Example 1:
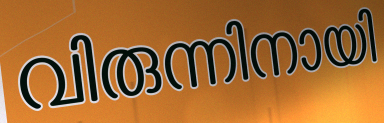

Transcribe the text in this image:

വിരുന്നിനായി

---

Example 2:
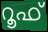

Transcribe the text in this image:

റൂഫ്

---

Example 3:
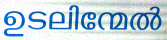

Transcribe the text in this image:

ഉടലിന്മേൽ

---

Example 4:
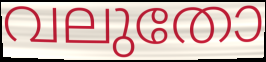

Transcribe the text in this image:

വലുതോ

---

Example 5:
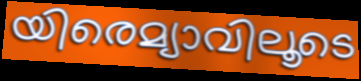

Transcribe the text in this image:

യിരെമ്യാവിലൂടെ